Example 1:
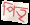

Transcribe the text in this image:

পিতৃ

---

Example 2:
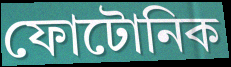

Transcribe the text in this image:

ফোটোনিক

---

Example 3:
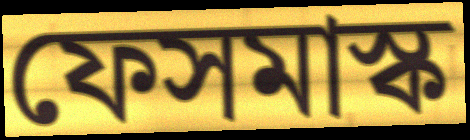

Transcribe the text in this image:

ফেসমাস্ক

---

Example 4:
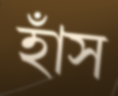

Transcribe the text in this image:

হাঁস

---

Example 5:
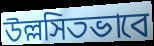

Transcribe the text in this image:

উল্লসিতভাবে